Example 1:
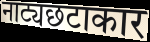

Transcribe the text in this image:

नाट्यछटाकार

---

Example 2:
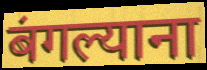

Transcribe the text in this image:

बंगल्याना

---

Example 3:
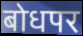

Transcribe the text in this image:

बोधपर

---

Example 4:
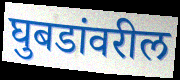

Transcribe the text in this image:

घुबडांवरील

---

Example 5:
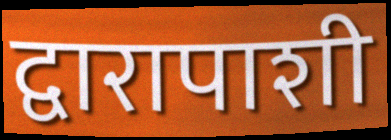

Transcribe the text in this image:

द्वारापाशी